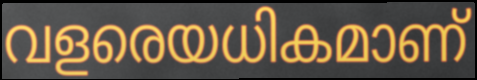
വളരെയധികമാണ്